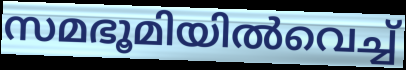
സമഭൂമിയിൽവെച്ച്